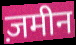
ज़मीन